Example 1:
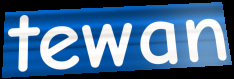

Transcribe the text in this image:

tewan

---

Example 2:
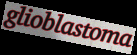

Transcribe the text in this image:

glioblastoma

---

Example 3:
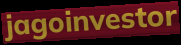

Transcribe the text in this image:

jagoinvestor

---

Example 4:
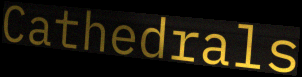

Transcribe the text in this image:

Cathedrals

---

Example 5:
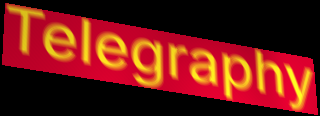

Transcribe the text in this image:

Telegraphy